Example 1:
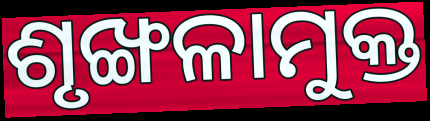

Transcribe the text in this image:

ଶୃଙ୍ଖଳାମୁକ୍ତ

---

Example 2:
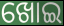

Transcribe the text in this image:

ଖୋଇ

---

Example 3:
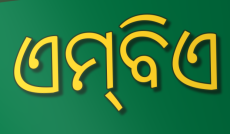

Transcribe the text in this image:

ଏମ୍‌ବିଏ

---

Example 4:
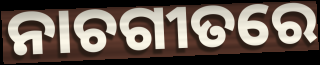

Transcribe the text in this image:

ନାଚଗୀତରେ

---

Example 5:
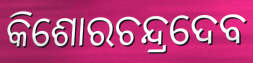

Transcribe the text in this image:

କିଶୋରଚନ୍ଦ୍ରଦେବ